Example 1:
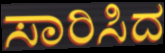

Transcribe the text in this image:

ಸಾರಿಸಿದ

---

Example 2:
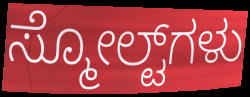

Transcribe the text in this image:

ಸ್ಮೋಲ್ಟ್‌ಗಳು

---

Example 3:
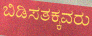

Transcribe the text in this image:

ಬಿಡಿಸತಕ್ಕವರು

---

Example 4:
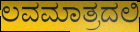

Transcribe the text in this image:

ಲವಮಾತ್ರದಲಿ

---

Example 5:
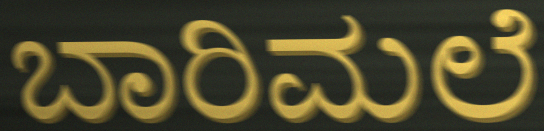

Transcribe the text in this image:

ಬಾರಿಮಲೆ